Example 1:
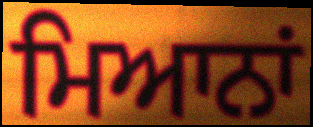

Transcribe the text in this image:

ਮਿਆਨਾਂ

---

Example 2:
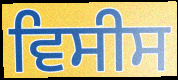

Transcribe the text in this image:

ਵਿਸੀਸ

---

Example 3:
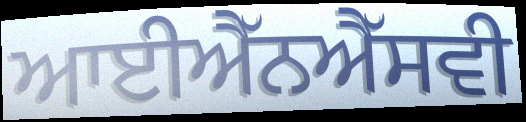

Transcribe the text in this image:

ਆਈਐੱਨਐੱਸਵੀ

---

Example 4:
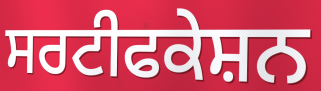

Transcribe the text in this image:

ਸਰਟੀਫਕੇਸ਼ਨ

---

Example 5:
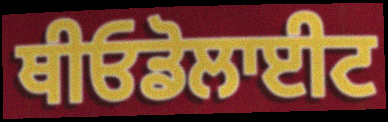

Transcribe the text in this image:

ਥੀਓਡੋਲਾਈਟ